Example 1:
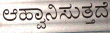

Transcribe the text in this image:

ಆಹ್ವಾನಿಸುತ್ತದೆ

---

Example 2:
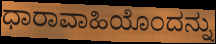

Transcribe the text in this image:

ಧಾರಾವಾಹಿಯೊಂದನ್ನು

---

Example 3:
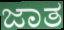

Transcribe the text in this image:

ಜಾತ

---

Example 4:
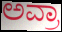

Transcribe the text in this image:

ಅವ್ರಾ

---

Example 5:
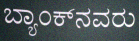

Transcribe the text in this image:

ಬ್ಯಾಂಕ್‌ನವರು